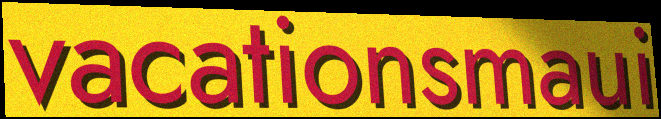
vacationsmaui